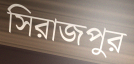
সিরাজপুর